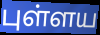
புள்ளய